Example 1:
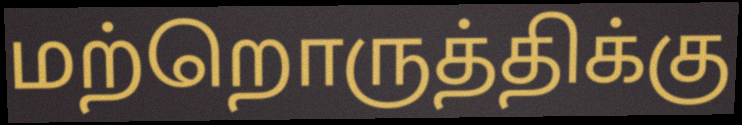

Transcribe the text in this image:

மற்றொருத்திக்கு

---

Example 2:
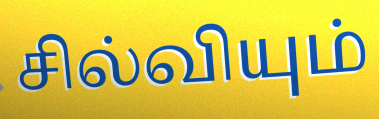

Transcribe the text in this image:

சில்வியும்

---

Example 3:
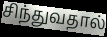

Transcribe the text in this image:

சிந்துவதால்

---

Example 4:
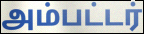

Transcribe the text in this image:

அம்பட்டர்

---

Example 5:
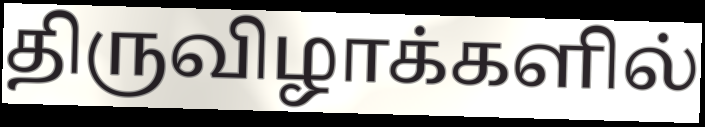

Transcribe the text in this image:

திருவிழாக்களில்